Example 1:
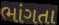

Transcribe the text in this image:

ભાંગતા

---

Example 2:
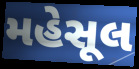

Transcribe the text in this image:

મહેસૂલ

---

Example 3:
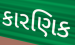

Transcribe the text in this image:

કારણિક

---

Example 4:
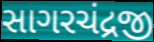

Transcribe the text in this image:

સાગરચંદ્રજી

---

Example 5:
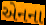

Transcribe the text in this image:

એનના